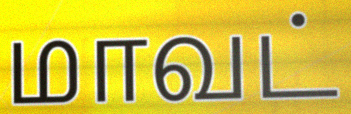
மாவட்